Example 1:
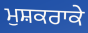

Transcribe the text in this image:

ਮੁਸ਼ਕਰਾਕੇ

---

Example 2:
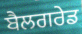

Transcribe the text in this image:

ਬੈਲਗਰੇਡ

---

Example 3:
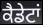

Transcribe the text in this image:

ਕੈਡੇਟਾਂ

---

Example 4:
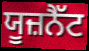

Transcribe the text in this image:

ਯੂਜ਼ਨੈੱਟ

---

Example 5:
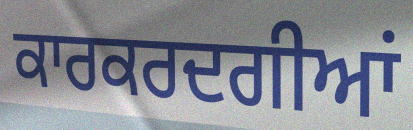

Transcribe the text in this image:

ਕਾਰਕਰਦਗੀਆਂ